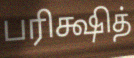
பரிக்ஷித்